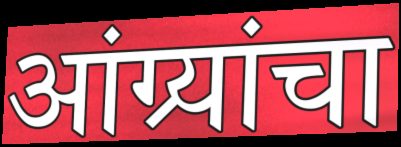
आंग्र्यांचा